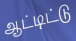
ஆட்டிட்டு